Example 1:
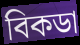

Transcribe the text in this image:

বিকডা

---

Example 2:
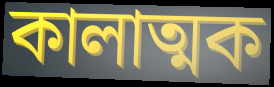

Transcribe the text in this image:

কালাত্মক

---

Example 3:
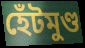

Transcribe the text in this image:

হেঁটমুণ্ড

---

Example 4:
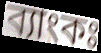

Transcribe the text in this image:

ব্যাংকঃ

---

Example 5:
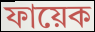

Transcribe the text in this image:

ফায়েক